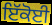
ਇੱਕੋਈ